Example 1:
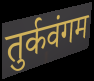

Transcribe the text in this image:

तुर्कवंगम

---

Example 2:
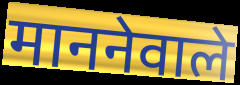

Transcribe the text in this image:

माननेवाले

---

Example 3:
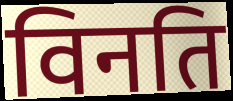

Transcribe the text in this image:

विनति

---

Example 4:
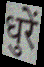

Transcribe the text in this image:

धुरें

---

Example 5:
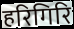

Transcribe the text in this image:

हरिगिरि